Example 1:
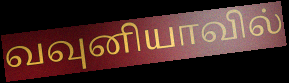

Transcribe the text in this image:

வவுனியாவில்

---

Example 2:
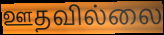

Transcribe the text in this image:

ஊதவில்லை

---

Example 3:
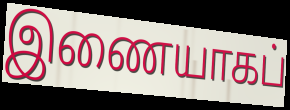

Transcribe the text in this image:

இணையாகப்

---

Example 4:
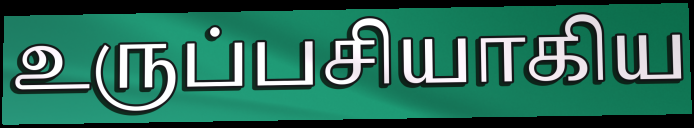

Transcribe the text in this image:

உருப்பசியாகிய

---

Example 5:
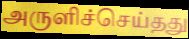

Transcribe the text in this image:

அருளிச்செய்தது